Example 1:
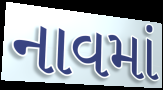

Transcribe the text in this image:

નાવમાં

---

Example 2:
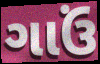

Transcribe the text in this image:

ગાઉં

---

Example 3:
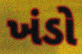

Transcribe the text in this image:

ખંડો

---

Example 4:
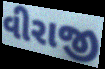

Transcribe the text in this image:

વીરાજી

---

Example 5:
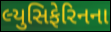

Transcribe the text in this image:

લ્યુસિફેરિનના